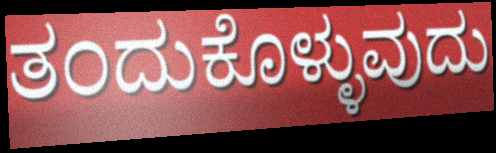
ತಂದುಕೊಳ್ಳುವುದು